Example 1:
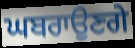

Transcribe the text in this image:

ਘਬਰਾਉਣਗੇ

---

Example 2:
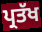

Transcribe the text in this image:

ਪ੍ਰਤੱਖ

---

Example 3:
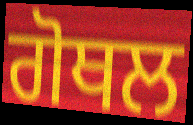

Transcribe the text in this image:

ਗੋਥਲ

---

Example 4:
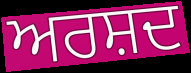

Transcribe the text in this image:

ਅਰਸ਼ਦ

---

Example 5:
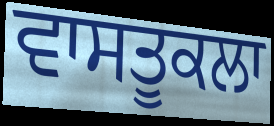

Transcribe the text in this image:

ਵਾਸਤੂਕਲਾ